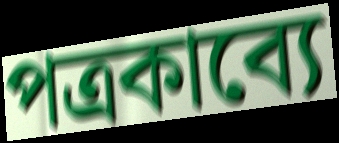
পত্রকাব্যে